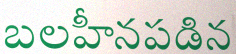
బలహీనపడిన